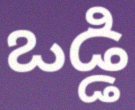
ఒడ్డి